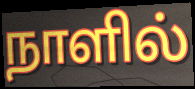
நாளில்